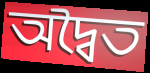
অদ্বৈত